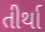
તીર્થા